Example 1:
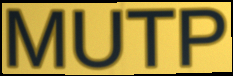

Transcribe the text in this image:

MUTP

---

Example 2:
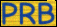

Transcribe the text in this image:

PRB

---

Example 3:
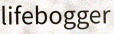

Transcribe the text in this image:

lifebogger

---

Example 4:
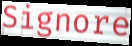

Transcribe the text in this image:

Signore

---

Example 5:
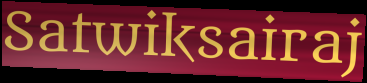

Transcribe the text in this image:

Satwiksairaj